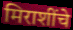
मिराशींचे